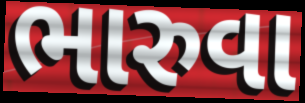
ભારુવા